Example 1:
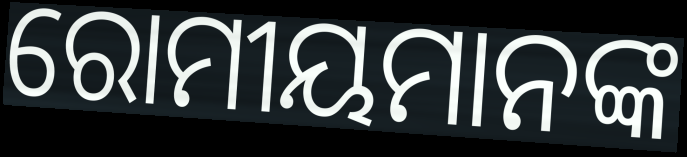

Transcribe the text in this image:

ରୋମୀୟମାନଙ୍କ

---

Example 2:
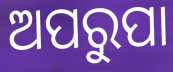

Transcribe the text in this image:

ଅପରୁପା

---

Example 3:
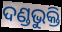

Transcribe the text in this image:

ଦଣ୍ଡଭୁକ୍ତି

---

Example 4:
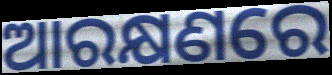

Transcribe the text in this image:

ଆରକ୍ଷଣରେ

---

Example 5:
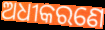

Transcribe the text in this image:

ଅଧୀକରଣେ